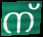
ന്